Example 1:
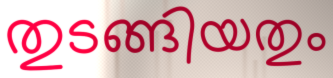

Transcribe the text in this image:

തുടങ്ങിയതും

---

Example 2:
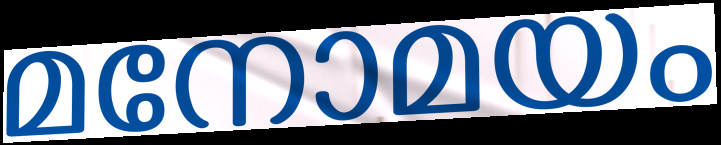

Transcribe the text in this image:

മനോമയം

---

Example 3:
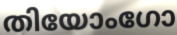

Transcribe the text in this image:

തിയോംഗോ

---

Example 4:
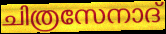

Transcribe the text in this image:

ചിത്രസേനാദ്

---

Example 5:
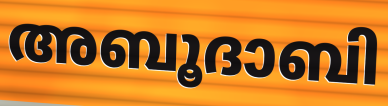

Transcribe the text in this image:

അബൂദാബി